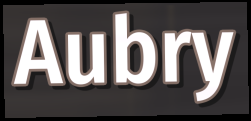
Aubry